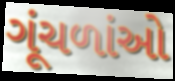
ગૂંચળાંઓ